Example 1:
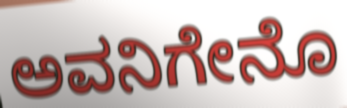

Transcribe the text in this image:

ಅವನಿಗೇನೊ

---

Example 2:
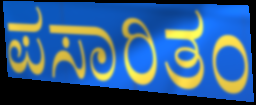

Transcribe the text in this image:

ಪಸಾರಿತಂ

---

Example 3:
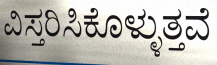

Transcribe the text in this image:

ವಿಸ್ತರಿಸಿಕೊಳ್ಳುತ್ತವೆ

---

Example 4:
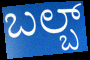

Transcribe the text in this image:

ಬಲ್ಬ್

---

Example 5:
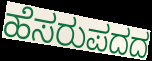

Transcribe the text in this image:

ಹೆಸರುಪದದ